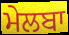
ਮੇਲਬਾ